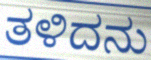
ತಳಿದನು